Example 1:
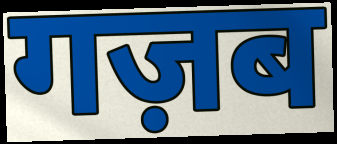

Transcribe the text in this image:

गज़ब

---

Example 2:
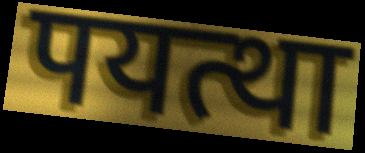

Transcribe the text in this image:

पयत्था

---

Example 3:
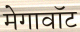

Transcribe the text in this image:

मेगावॉट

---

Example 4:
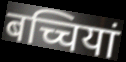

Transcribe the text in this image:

बच्चियां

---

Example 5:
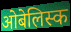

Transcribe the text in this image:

ओबेलिस्क